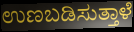
ಉಣಬಡಿಸುತ್ತಾಳೆ